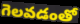
గెలవడంతో